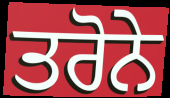
ਤਰੋਨੇ